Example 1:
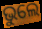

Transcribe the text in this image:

ଭୁଲେ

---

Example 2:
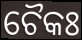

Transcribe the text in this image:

ଚୈକଃ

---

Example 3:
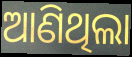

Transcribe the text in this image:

ଆଣିଥିଲା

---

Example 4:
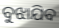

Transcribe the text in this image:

ବୁଝାଯିବ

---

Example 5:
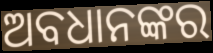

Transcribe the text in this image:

ଅବଧାନଙ୍କର